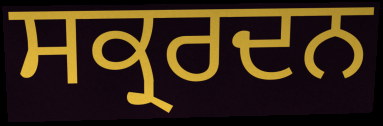
ਸਕ੍ਰਰਦਨ